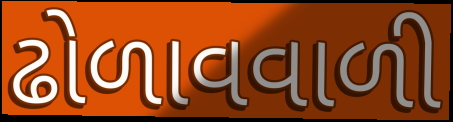
ઢોળાવવાળી